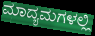
ಮಾದ್ಯಮಗಳಲ್ಲಿ